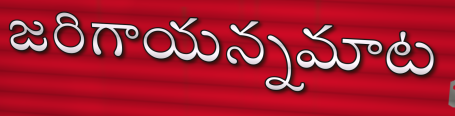
జరిగాయన్నమాట